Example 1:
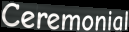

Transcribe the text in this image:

Ceremonial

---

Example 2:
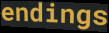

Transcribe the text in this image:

endings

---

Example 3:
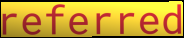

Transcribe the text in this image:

referred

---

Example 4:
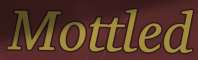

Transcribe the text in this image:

Mottled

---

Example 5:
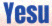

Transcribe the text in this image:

Yesu